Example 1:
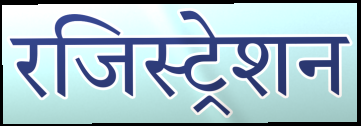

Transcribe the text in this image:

रजिस्‍ट्रेशन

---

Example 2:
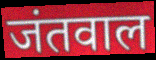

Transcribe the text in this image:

जंतवाल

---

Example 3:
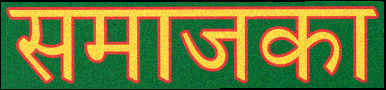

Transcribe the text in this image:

समाजका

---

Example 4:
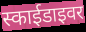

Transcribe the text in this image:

स्काईडाइवर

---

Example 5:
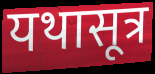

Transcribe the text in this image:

यथासूत्र